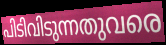
പിടിവിടുന്നതുവരെ